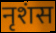
नृशंस